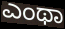
ಎಂಥಾ